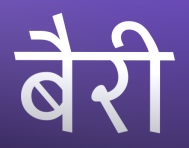
बैरी